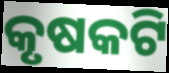
କୃଷକଟି